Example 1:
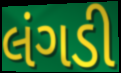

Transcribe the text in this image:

લંગડી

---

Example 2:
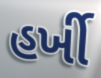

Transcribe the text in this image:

હર્ખી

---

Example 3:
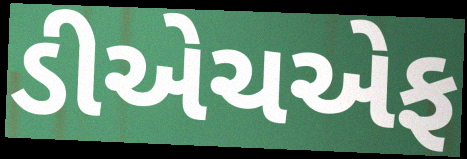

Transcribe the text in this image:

ડીએચએફ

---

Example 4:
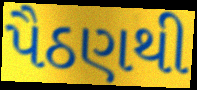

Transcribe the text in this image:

પૈઠણથી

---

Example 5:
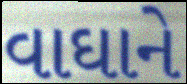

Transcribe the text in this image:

વાઘાને